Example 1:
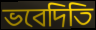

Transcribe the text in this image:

ভবেদিতি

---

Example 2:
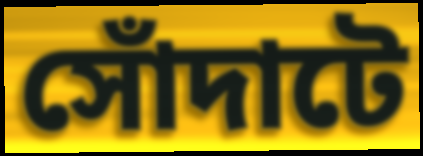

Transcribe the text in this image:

সোঁদাটে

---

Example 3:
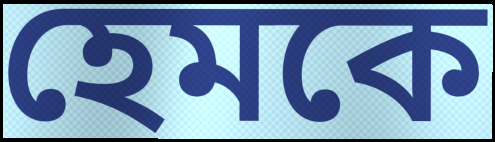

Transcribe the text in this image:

হেমকে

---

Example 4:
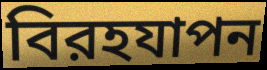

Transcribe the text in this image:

বিরহযাপন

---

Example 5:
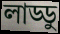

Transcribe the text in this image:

লাড্ডু